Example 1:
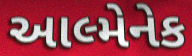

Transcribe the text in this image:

આલ્મેનેક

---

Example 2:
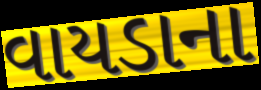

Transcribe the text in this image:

વાયડાના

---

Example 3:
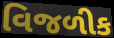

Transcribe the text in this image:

વિજળીક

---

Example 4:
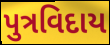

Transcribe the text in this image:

પુત્રવિદાય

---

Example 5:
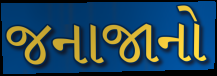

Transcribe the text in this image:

જનાજાનો